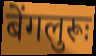
बेंगलुरूः